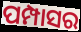
ପମ୍ପାସର